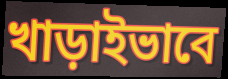
খাড়াইভাবে